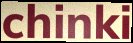
chinki